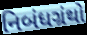
નિબંધગ્રંથો